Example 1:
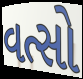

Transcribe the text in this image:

વત્સો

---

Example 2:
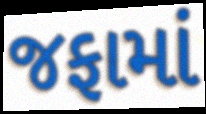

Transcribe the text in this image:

જફામાં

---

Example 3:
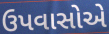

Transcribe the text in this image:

ઉપવાસોએ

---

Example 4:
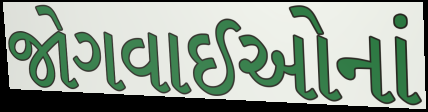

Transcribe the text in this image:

જોગવાઈઓનાં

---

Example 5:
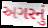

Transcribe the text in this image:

અગરનું